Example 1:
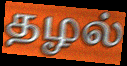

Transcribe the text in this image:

தழல்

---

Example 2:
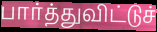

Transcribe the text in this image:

பார்த்துவிட்டுச்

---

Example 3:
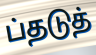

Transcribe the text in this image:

ப்தடுத்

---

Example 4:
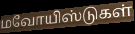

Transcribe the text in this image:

மவோயிஸ்டுகள்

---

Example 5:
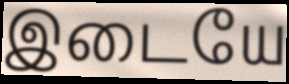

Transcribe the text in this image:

இடையே